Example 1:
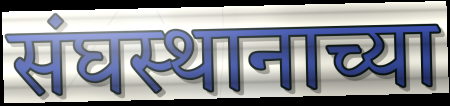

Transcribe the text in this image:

संघस्थानाच्या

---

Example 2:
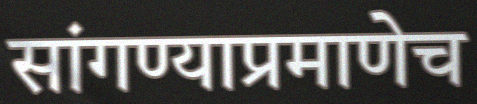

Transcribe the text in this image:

सांगण्याप्रमाणेच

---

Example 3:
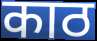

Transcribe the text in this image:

काठ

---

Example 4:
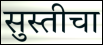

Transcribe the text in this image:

सुस्तीचा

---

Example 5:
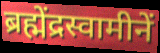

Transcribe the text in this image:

ब्रह्मेंद्रस्वामीनें